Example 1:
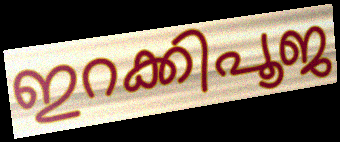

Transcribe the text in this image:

ഇറക്കിപൂജ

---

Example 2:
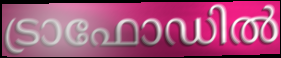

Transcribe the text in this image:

ട്രാഫോഡിൽ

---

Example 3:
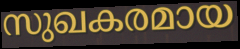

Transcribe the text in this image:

സുഖകരമായ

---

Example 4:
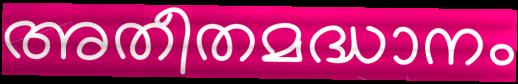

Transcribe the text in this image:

അതീതമദ്ധാനം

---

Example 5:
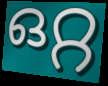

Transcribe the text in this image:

ഒറ്റ